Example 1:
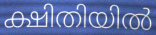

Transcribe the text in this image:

ക്ഷിതിയിൽ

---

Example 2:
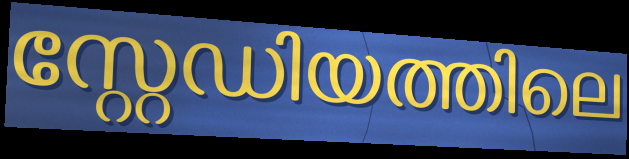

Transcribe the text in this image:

സ്റ്റേഡിയത്തിലെ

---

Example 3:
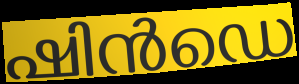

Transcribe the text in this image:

ഷിൻഡെ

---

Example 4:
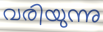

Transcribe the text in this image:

വരിയുന്നു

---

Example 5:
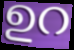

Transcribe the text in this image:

ഉറ